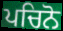
ਪਚਿਨੋ